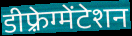
डीफ़्रेग्मेंटेशन